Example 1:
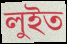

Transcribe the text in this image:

লুইত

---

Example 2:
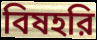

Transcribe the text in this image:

বিষহরি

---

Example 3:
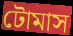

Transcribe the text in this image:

টোমাস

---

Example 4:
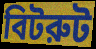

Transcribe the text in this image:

বিটরুট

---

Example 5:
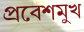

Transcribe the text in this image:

প্রবেশমুখ